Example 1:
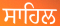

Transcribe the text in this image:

ਸਾਹਿਲ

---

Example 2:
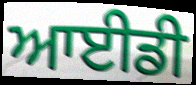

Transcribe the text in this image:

ਆਈਡੀ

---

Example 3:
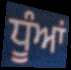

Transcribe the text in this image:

ਧੂੰਆਂ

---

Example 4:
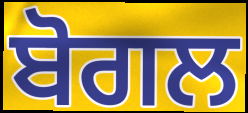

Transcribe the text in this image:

ਬੋਗਲ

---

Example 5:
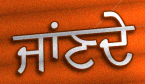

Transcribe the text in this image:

ਜਾਂਣਦੇ